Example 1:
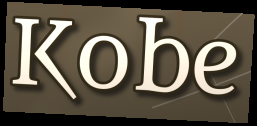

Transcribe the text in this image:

Kobe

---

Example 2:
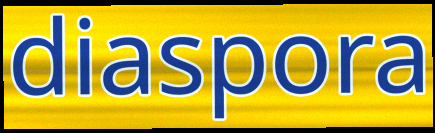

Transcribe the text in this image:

diaspora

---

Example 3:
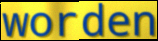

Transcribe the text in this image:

worden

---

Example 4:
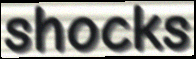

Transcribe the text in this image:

shocks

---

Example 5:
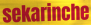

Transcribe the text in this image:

sekarinche